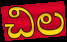
చిల